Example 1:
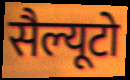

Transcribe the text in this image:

सैल्यूटो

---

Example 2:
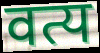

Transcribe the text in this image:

वत्य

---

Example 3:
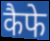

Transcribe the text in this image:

कैफे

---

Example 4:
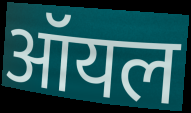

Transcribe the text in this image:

ऑयल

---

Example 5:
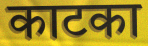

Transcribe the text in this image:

काटका